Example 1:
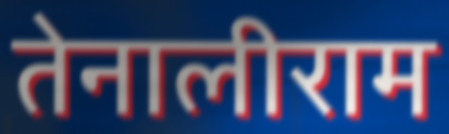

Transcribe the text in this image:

तेनालीराम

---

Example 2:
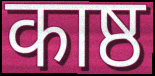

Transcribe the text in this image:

काष्ठ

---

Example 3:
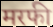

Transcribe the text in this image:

मरफी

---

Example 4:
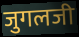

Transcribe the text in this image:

जुगलजी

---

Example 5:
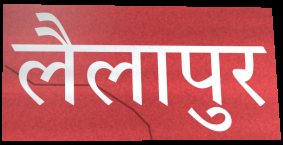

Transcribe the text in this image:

लैलापुर